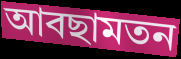
আবছামতন